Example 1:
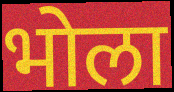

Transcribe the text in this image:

भोला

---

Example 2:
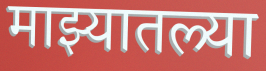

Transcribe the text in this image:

माझ्यातल्या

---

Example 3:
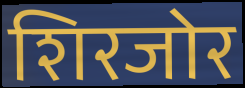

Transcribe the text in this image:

शिरजोर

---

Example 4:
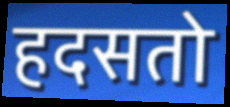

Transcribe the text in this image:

हदसतो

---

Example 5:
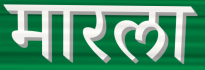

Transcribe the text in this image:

मारला